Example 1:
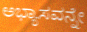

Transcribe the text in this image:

ಅಭ್ಯಾಸವನ್ನೇ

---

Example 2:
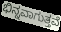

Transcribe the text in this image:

ಭಿನ್ನವಾಗುತ್ತವೆ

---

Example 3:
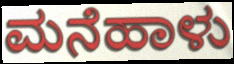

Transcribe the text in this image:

ಮನೆಹಾಳು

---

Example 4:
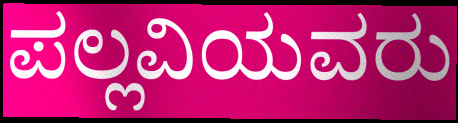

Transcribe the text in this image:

ಪಲ್ಲವಿಯವರು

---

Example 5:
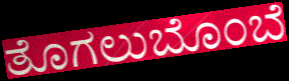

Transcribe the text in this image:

ತೊಗಲುಬೊಂಬೆ